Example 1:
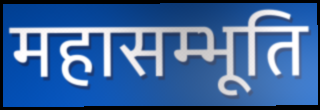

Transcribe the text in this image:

महासम्भूति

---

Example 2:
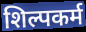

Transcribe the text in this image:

शिल्पकर्म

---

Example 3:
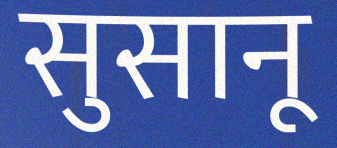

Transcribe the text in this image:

सुसानू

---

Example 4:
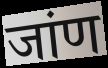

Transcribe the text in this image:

जांण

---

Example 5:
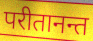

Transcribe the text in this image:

परीतानन्त